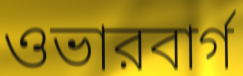
ওভারবার্গ